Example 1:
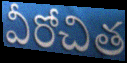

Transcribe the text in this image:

వీరోచిత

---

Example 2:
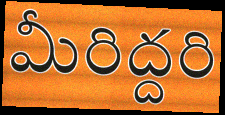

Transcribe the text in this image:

మీరిద్దరి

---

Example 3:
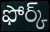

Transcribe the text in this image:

ఫోర్క్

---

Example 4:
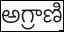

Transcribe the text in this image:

అగ్రాణి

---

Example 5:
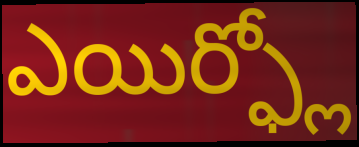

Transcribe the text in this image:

ఎయిర్ఫ్లో